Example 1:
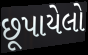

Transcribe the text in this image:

છૂપાયેલો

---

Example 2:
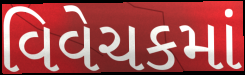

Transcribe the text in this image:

વિવેચકમાં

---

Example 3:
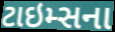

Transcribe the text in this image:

ટાઇમ્સના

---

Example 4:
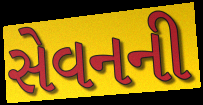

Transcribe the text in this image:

સેવનની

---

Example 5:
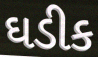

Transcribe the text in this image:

ઘડીક